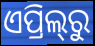
ଏପ୍ରିଲ୍‌ରୁ